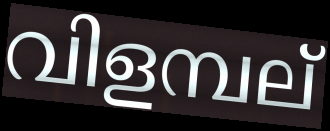
വിളമ്പല്